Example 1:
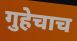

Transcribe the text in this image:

गुहेचाच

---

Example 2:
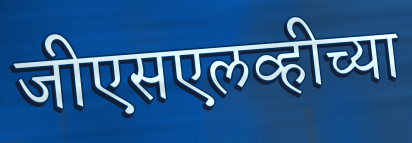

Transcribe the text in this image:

जीएसएलव्हीच्या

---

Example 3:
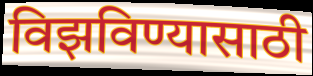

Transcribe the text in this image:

विझविण्यासाठी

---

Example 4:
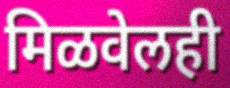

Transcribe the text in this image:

मिळवेलही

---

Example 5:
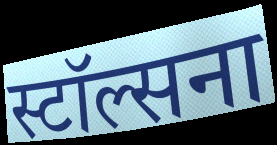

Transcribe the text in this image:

स्टॉल्सना